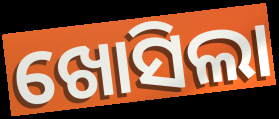
ଖୋସିଲା